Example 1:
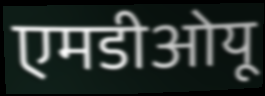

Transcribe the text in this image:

एमडीओयू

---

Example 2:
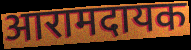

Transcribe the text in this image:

आरामदायक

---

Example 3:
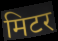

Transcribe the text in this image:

मिटर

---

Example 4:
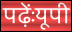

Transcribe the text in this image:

पढ़ेंःयूपी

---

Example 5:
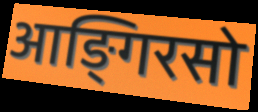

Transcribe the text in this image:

आङ्गिरसो